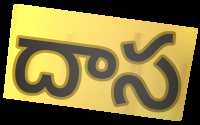
దాస